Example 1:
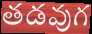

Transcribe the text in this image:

తడవుగ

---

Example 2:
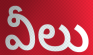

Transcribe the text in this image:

వీలు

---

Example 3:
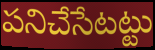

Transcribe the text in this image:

పనిచేసేటట్టు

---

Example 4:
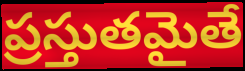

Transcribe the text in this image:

ప్రస్తుతమైతే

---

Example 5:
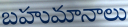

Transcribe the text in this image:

బహుమానాలు